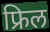
फ्रिल